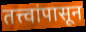
तत्त्वांपासून